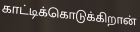
காட்டிக்கொடுக்கிறான்